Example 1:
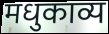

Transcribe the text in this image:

मधुकाव्य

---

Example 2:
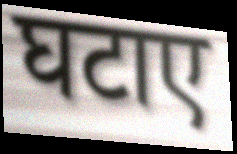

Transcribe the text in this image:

घटाए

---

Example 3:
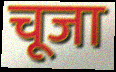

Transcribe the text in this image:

चूजा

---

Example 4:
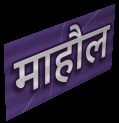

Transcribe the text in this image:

माहौल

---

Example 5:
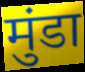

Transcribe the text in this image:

मुंडा